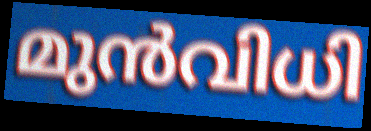
മുൻവിധി